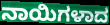
ನಾಯಿಗಳಾದ